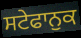
ਸਟੇਫਾਨੁਕ